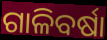
ଗାଳିବର୍ଷା